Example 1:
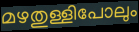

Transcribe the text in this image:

മഴതുള്ളിപോലും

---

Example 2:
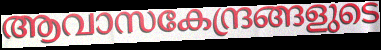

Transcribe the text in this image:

ആവാസകേന്ദ്രങ്ങളുടെ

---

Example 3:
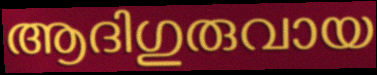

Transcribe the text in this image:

ആദിഗുരുവായ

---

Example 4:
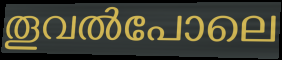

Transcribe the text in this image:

തൂവൽപോലെ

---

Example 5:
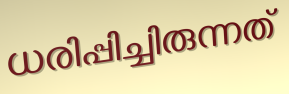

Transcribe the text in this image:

ധരിപ്പിച്ചിരുന്നത്